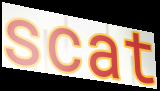
scat